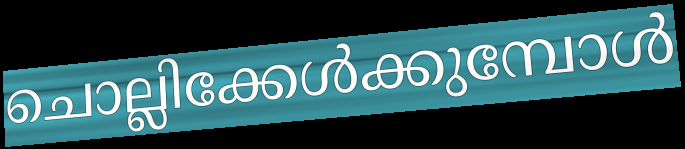
ചൊല്ലിക്കേൾക്കുമ്പോൾ